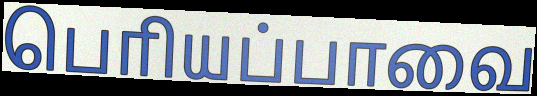
பெரியப்பாவை